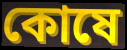
কোষে